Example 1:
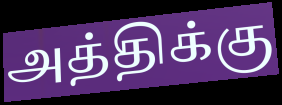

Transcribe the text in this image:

அத்திக்கு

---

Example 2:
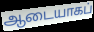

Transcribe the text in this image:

ஆடையாகப்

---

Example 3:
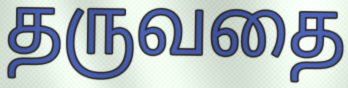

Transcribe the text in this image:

தருவதை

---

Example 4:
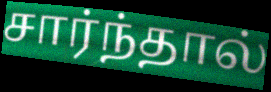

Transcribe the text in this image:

சார்ந்தால்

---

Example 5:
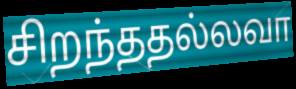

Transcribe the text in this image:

சிறந்ததல்லவா